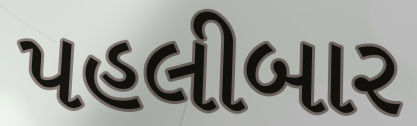
પહલીબાર